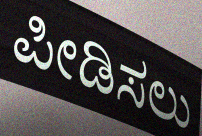
ಪೀಡಿಸಲು